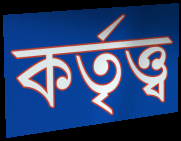
কর্তৃত্ত্ব